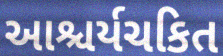
આશ્ચર્યચકિત